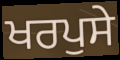
ਖਰਪੁਸੇ